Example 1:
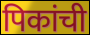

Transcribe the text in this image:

पिकांची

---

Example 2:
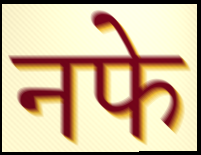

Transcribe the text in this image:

नफे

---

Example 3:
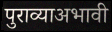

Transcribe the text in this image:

पुराव्याअभावी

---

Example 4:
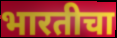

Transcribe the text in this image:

भारतीचा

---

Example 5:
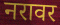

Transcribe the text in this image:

नरावर